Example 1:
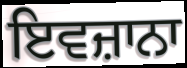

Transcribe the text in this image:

ਇਵਜ਼ਾਨਾ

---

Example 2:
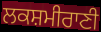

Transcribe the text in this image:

ਲਕਸ਼ਮੀਰਾਣੀ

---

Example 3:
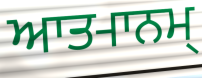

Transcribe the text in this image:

ਆਤ੍ਮਾਨਮ੍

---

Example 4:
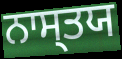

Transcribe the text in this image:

ਨਾਸ੍ਤਯ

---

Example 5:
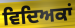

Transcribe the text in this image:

ਵਿਦਿਅਕਾਂ